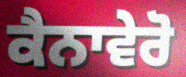
ਕੈਨਾਵੇਰੋ